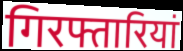
गिरफ्तारियां